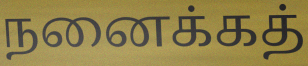
நனைக்கத்